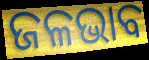
ଜଳଭାବ